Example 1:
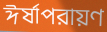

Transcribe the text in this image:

ঈর্ষাপরায়ণ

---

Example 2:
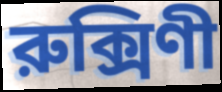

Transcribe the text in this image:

রুক্সিণী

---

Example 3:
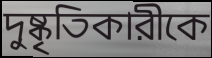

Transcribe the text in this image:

দুষ্কৃতিকারীকে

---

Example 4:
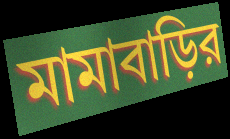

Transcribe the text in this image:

মামাবাড়ির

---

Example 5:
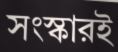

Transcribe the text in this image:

সংস্কারই